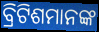
ବ୍ରିଟିଶମାନଙ୍କ